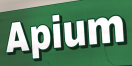
Apium